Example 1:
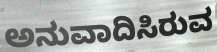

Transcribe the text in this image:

ಅನುವಾದಿಸಿರುವ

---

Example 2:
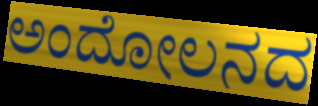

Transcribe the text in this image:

ಅಂದೋಲನದ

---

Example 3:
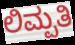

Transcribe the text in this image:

ಲಿಮ್ಪತಿ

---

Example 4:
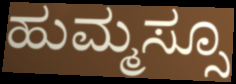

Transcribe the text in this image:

ಹುಮ್ಮಸ್ಸೂ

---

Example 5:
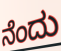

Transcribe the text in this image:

ನೆಂದು